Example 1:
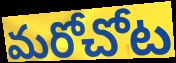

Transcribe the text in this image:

మరోచోట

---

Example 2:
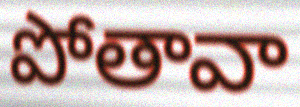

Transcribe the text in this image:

పోతావా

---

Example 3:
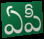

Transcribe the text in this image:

ఏపీ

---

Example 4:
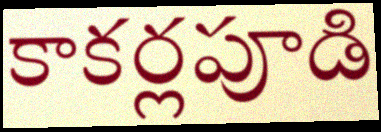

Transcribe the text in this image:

కాకర్లపూడి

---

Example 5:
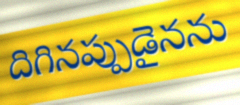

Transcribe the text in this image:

దిగినప్పుడైనను